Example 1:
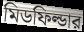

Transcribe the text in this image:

মিডফিল্ডার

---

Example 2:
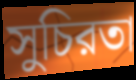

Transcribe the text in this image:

সুচিরতা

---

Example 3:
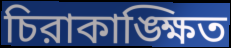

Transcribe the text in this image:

চিরাকাঙ্ক্ষিত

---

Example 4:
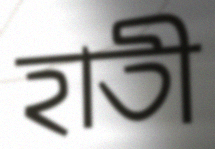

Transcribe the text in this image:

হাতী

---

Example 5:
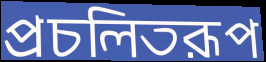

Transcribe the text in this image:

প্রচলিতরূপ